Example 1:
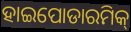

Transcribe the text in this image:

ହାଇପୋଡାରମିକ୍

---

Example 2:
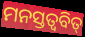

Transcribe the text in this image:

ମନସ୍ତତ୍ୱବିତ୍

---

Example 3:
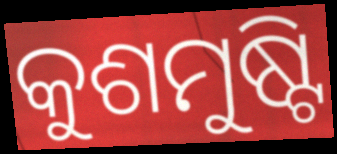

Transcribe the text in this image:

କୁଶମୁଷ୍ଟି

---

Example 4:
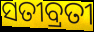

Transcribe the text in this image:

ସତୀବ୍ରତୀ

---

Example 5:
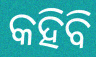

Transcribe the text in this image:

କହିବି